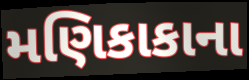
મણિકાકાના